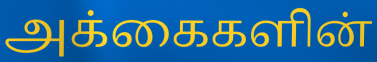
அக்கைகளின்